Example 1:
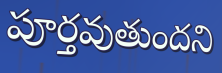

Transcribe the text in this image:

పూర్తవుతుందని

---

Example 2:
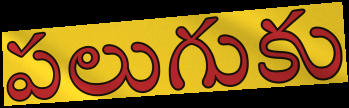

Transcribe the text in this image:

పలుగుకు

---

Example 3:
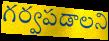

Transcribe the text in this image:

గర్వపడాలని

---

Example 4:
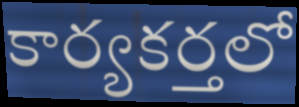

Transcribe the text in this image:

కార్యకర్తలో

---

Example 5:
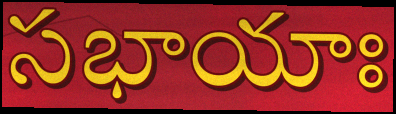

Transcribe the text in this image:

సభాయాః